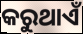
କରୁଥାଏଁ